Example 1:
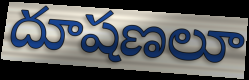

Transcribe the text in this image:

దూషణలూ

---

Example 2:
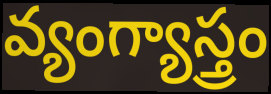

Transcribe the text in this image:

వ్యంగ్యాస్త్రం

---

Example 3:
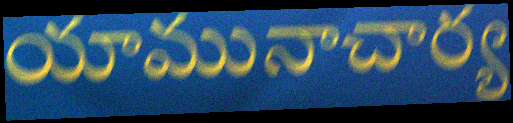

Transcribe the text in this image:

యామునాచార్య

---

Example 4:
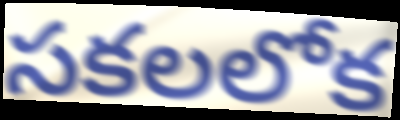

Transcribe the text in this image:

సకలలోక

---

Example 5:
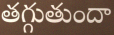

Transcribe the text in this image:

తగ్గుతుందా